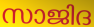
സാജിദ